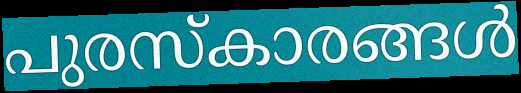
പുരസ്കാരങ്ങൾ